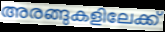
അരങ്ങുകളിലേക്ക്